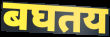
बघतय